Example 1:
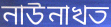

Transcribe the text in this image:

নাউনাখত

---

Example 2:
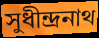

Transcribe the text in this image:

সুধীন্দ্রনাথ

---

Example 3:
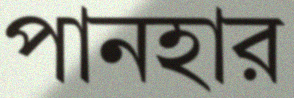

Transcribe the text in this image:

পানহার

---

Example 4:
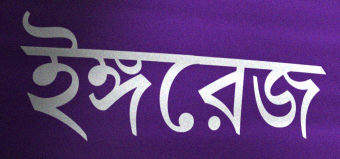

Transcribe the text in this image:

ইঙ্গরেজ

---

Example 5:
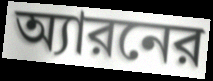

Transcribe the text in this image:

অ্যারনের